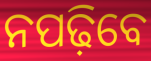
ନପଢ଼ିବେ